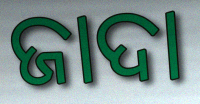
ଜାଦା